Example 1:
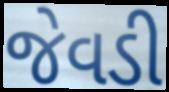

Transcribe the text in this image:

જેવડી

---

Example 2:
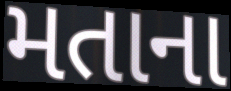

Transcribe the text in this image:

મતાના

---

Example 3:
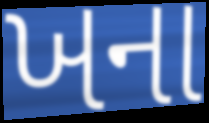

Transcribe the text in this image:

ખના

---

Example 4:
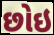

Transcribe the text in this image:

છોઇ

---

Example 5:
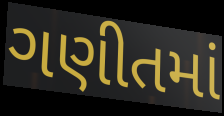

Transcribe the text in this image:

ગણીતમાં